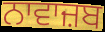
ਨਾਵਾਜ਼ਬ